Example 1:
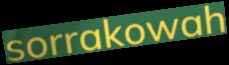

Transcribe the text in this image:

sorrakowah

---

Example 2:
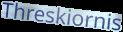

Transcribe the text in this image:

Threskiornis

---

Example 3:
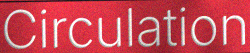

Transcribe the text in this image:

Circulation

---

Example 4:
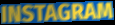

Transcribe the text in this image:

INSTAGRAM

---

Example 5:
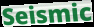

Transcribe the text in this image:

Seismic